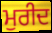
ਮੁਰੀਦ